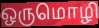
ஒருமொழி